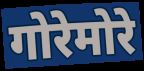
गोरेमोरे